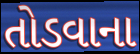
તોડવાના